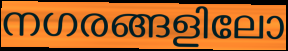
നഗരങ്ങളിലോ